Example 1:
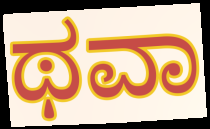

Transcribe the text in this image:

ಥವಾ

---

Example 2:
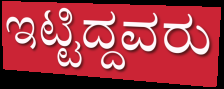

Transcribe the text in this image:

ಇಟ್ಟಿದ್ದವರು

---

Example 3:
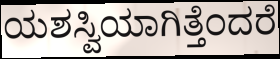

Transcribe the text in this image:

ಯಶಸ್ವಿಯಾಗಿತ್ತೆಂದರೆ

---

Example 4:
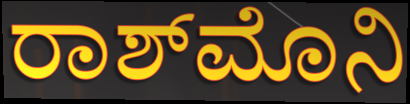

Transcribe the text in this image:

ರಾಶ್‌ಮೊನಿ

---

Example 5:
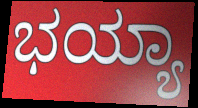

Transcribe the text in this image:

ಭಯ್ಯಾ